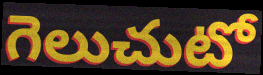
గెలుచుటో